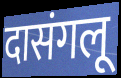
दासंगलू